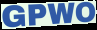
GPWO